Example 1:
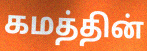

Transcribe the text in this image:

கமத்தின்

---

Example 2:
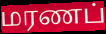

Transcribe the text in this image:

மரணப்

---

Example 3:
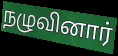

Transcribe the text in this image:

நழுவினார்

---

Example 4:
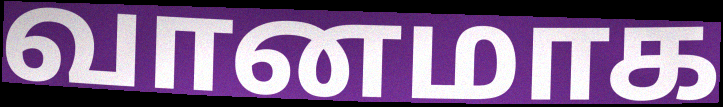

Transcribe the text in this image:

வானமாக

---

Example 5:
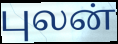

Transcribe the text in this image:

புலன்